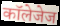
कॉलेजेज